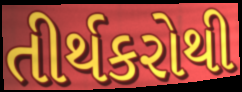
તીર્થકરોથી